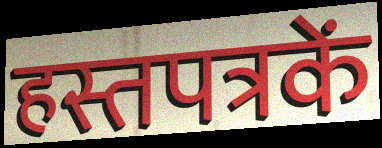
हस्तपत्रकें